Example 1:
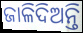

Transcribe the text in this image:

ଜାଳିଦିଅନ୍ତି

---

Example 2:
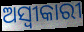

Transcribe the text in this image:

ଅସ୍ୱୀକାରୀ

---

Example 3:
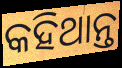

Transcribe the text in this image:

କହିଥାନ୍ତ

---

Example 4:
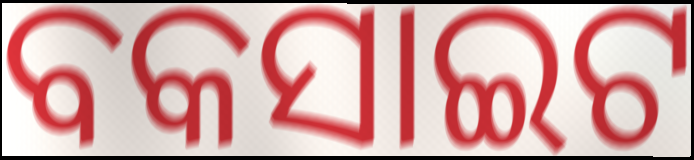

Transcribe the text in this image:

ବକସାଇଟ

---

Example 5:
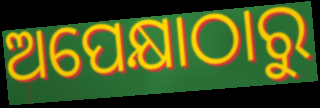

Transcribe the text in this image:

ଅପେକ୍ଷାଠାରୁ